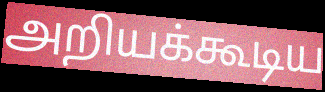
அறியக்கூடிய